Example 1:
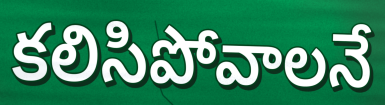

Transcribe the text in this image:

కలిసిపోవాలనే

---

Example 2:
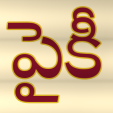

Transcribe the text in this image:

పైకీ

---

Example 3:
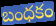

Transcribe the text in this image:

బంధకం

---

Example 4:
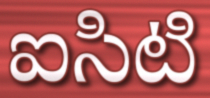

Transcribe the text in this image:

ఐసిటి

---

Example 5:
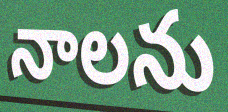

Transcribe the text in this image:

నాలను